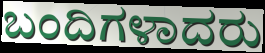
ಬಂದಿಗಳಾದರು